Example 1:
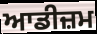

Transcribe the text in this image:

ਆਡੀਜ਼ਮ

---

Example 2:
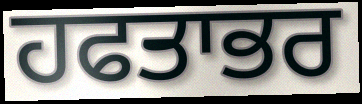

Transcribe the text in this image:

ਹਫਤਾਭਰ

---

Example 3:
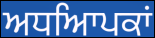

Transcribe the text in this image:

ਅਧਆਿਪਕਾਂ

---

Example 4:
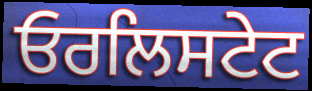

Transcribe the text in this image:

ਓਰਲਿਸਟੇਟ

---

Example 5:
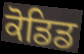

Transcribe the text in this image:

ਕੋਡਿਡ